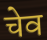
चेव